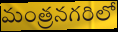
మంత్రనగరిలో